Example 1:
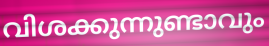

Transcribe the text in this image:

വിശക്കുന്നുണ്ടാവും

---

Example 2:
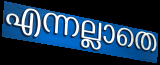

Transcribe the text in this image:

എന്നല്ലാതെ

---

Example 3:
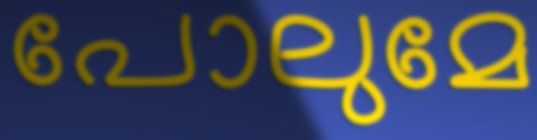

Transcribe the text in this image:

പോലുമേ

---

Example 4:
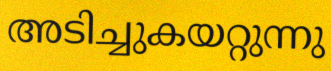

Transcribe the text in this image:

അടിച്ചുകയറ്റുന്നു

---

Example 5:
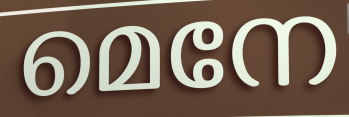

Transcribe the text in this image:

മെനേ